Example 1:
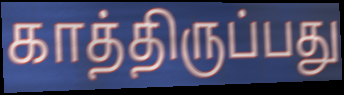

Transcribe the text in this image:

காத்திருப்பது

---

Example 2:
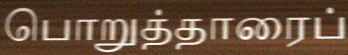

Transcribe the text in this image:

பொறுத்தாரைப்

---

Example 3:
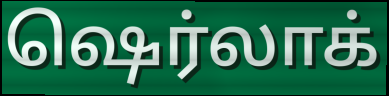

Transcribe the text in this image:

ஷெர்லாக்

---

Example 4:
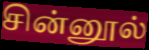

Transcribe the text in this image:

சின்னூல்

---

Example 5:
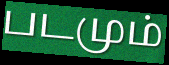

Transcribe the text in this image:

படமும்